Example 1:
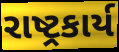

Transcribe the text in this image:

રાષ્ટ્રકાર્ય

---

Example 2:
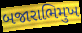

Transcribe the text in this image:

બજારાભિમુખ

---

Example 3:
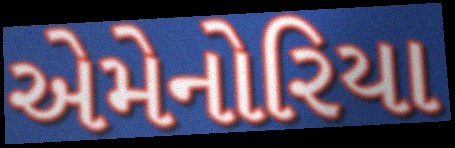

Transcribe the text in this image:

એમેનોરિયા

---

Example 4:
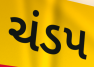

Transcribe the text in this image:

ચંડપ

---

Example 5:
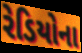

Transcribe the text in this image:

રેડિયોના